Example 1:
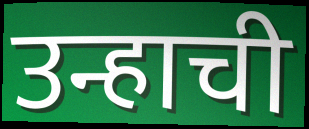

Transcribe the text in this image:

उन्हाची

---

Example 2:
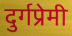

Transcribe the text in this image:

दुर्गप्रेमी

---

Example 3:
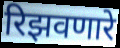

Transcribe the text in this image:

रिझवणारे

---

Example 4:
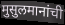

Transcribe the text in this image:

मुसुलमानांची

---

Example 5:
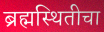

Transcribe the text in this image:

ब्रह्मस्थितीचा